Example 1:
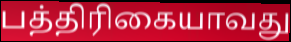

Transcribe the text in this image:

பத்திரிகையாவது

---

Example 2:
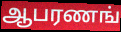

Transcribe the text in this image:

ஆபரணங்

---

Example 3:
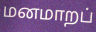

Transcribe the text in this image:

மனமாறப்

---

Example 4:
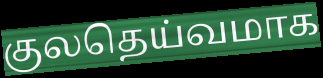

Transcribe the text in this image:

குலதெய்வமாக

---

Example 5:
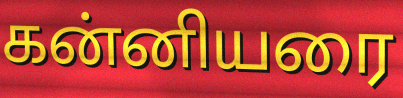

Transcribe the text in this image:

கன்னியரை